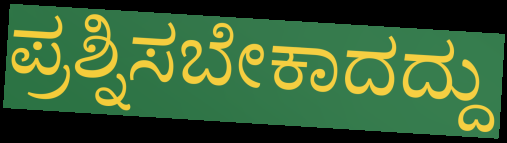
ಪ್ರಶ್ನಿಸಬೇಕಾದದ್ದು